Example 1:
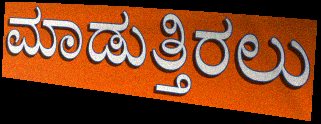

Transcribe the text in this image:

ಮಾಡುತ್ತಿರಲು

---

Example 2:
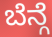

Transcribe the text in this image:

ಬೆನ್ಗೆ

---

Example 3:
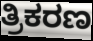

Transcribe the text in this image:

ತ್ರಿಕರಣ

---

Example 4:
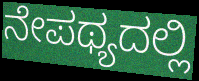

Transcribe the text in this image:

ನೇಪಥ್ಯದಲ್ಲಿ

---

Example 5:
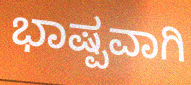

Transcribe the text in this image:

ಭಾಷ್ಪವಾಗಿ